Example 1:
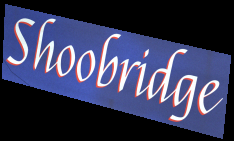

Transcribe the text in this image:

Shoobridge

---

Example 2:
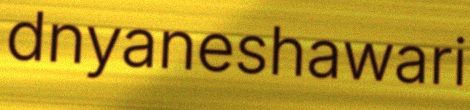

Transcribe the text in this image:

dnyaneshawari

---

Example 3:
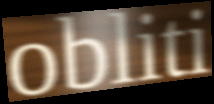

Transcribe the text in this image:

obliti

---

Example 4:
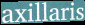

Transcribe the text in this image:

axillaris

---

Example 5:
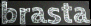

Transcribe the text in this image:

brasta